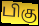
பிகு